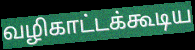
வழிகாட்டக்கூடிய